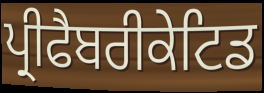
ਪ੍ਰੀਫੈਬਰੀਕੇਟਿਡ